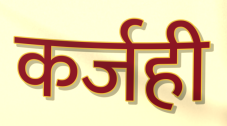
कर्जही